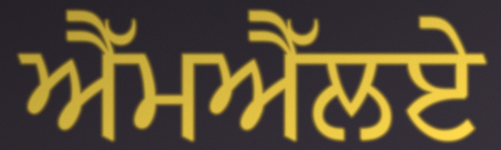
ਐੱਮਐੱਲਏ